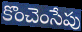
కొంచెంసేపు